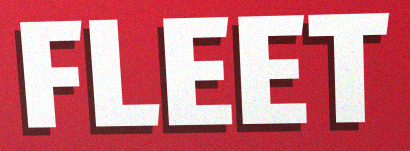
FLEET